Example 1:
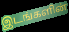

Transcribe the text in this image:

இடங்களின்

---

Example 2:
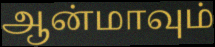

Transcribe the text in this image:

ஆன்மாவும்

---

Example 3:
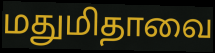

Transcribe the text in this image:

மதுமிதாவை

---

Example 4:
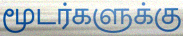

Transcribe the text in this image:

மூடர்களுக்கு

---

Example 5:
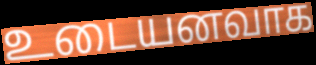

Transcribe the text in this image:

உடையனவாக